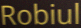
Robiul